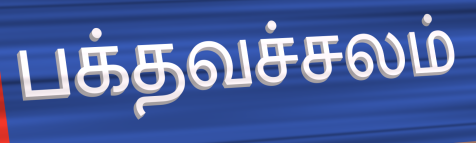
பக்தவச்சலம்